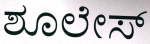
ಶೂಲೇಸ್